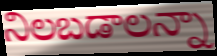
నిలబడాలన్నా